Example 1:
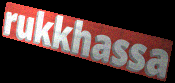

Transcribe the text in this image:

rukkhassa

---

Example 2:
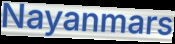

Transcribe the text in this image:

Nayanmars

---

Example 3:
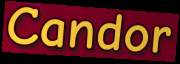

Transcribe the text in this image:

Candor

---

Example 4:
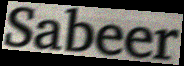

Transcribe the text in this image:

Sabeer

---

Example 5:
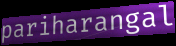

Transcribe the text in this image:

pariharangal